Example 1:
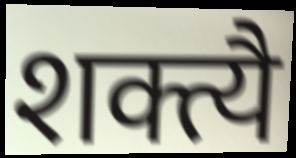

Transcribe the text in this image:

शक्त्यै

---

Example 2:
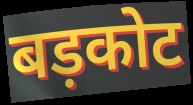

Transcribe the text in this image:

बड़कोट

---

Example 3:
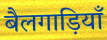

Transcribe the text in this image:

बैलगाड़ियाँ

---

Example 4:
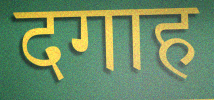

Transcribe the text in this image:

दगाह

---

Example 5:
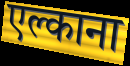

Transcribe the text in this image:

एल्काना